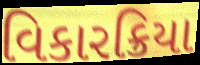
વિકારક્રિયા